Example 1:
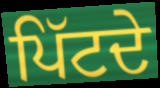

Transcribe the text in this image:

ਪਿੱਟਦੇ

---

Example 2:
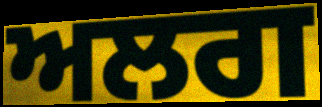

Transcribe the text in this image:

ਅਲਗ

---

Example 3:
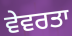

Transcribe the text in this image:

ਵੇਵਰਤਾ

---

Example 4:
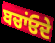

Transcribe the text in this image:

ਬਚਾਂਓਦੇ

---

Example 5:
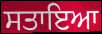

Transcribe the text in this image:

ਸਤਾਇਆ